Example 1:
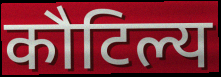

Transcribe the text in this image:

कौटिल्य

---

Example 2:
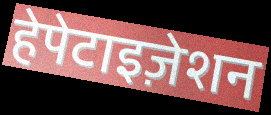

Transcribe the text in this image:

हेपेटाइज़ेशन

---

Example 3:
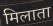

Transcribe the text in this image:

मिलाता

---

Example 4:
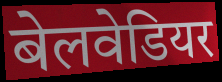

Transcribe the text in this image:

बेलवेडियर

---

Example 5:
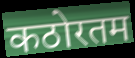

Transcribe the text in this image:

कठोरतम